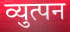
व्युत्पन